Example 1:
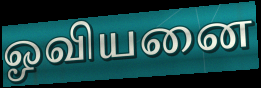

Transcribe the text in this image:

ஓவியனை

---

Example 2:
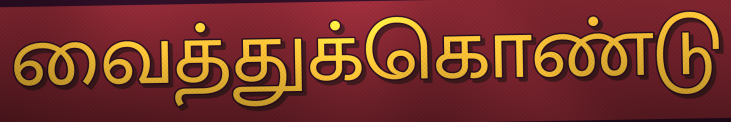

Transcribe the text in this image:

வைத்துக்கொண்டு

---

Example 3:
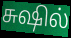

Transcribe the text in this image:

சுஷில்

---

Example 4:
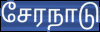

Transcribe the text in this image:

சேரநாடு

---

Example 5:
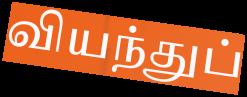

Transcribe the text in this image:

வியந்துப்